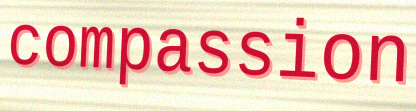
compassion